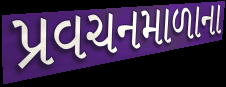
પ્રવચનમાળાના